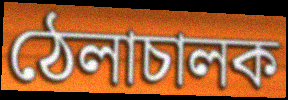
ঠেলাচালক